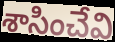
శాసించేవి